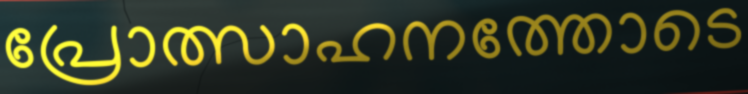
പ്രോത്സാഹനത്തോടെ